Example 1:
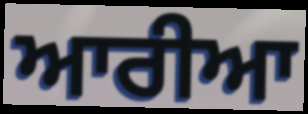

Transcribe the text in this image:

ਆਰੀਆ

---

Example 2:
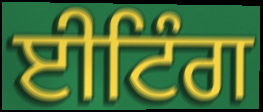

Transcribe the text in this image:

ਈਟਿੰਗ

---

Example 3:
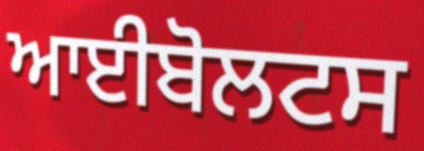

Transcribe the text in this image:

ਆਈਬੋਲਟਸ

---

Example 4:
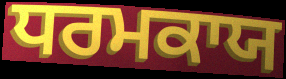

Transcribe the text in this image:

ਧਰਮਕਾਯ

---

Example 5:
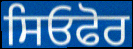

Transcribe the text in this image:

ਸਿਓਫੋਰ